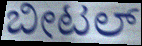
ಬೀಟಲ್